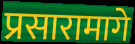
प्रसारामागे